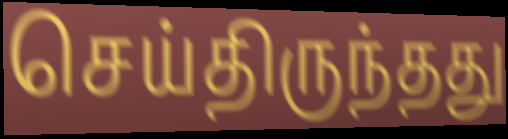
செய்திருந்தது